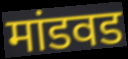
मांडवड